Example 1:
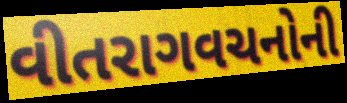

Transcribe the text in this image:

વીતરાગવચનોની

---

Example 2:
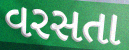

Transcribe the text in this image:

વરસતા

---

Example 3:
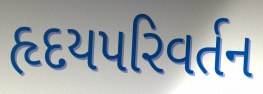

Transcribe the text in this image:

હૃદયપરિવર્તન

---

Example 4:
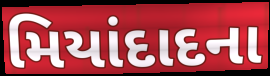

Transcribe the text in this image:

મિયાંદાદના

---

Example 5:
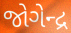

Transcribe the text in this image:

જોગેન્દ્ર